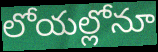
లోయల్లోనూ